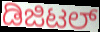
ಡಿಜಿಟಲ್